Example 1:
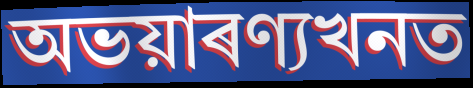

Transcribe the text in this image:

অভয়াৰণ্যখনত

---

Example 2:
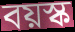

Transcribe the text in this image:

বয়স্ক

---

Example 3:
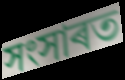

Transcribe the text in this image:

সংসাৰত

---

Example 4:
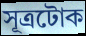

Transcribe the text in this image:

সূত্ৰটোক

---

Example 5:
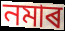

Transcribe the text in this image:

নমাৰ